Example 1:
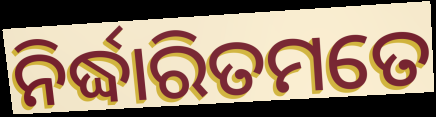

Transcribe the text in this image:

ନିର୍ଦ୍ଧାରିତମତେ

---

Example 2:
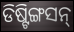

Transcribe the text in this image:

ଡିଷ୍ଟିଙ୍ଗସନ୍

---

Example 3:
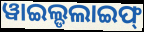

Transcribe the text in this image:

ୱାଇଲ୍ଡଲାଇଫ୍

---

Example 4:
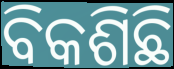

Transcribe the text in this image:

ବିକଶିଛି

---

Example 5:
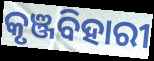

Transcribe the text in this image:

କୃଞ୍ଜବିହାରୀ